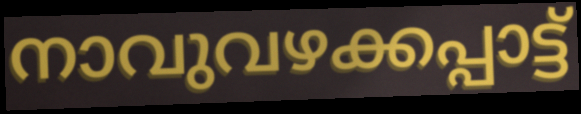
നാവുവഴക്കപ്പാട്ട്